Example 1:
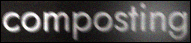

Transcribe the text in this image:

composting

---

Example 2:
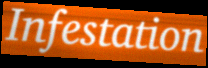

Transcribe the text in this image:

Infestation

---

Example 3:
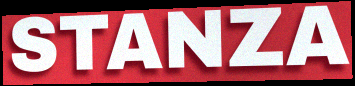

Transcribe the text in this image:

STANZA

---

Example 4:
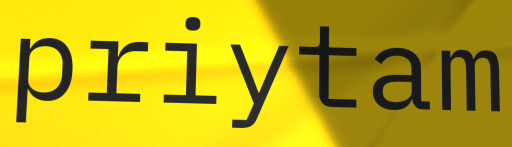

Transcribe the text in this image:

priytam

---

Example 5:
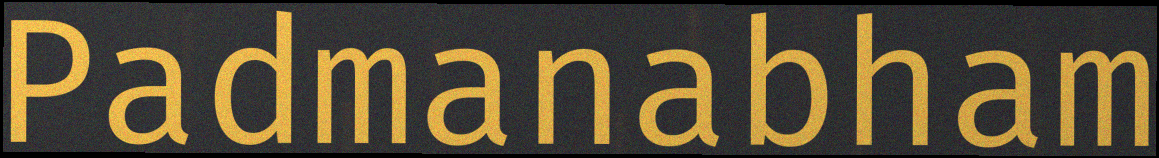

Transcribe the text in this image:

Padmanabham